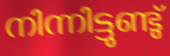
നിന്നിട്ടുണ്ടു്